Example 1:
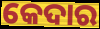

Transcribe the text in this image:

କେଦାର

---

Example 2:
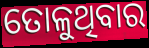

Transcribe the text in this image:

ତୋଳୁଥିବାର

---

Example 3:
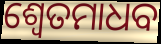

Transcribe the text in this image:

ଶ୍ୱେତମାଧବ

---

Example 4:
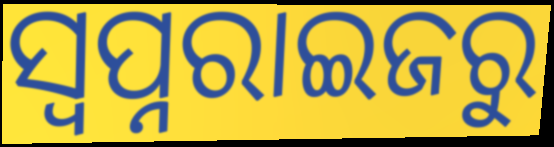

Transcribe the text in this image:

ସ୍ୱପ୍ନରାଇଜରୁ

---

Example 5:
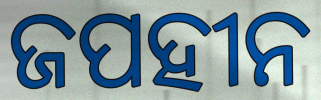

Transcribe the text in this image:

ଜପହୀନ